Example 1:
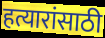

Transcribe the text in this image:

हत्यारांसाठी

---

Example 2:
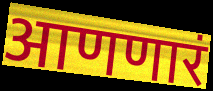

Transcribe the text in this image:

आणणारं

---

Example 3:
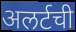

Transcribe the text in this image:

अलर्टची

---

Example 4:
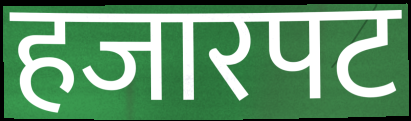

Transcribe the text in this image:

हजारपट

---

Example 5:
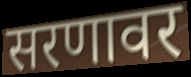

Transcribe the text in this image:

सरणावर